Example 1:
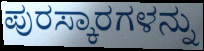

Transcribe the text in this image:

ಪುರಸ್ಕಾರಗಳನ್ನು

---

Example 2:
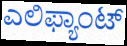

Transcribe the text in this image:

ಎಲಿಫ್ಯಾಂಟ್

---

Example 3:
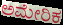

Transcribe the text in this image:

ಅಮೇರಿಕ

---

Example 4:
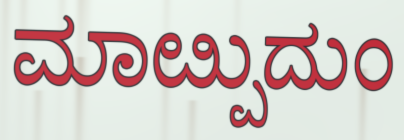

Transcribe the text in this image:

ಮಾೞ್ಪುದುಂ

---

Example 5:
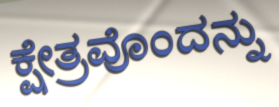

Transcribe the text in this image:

ಕ್ಷೇತ್ರವೊಂದನ್ನು